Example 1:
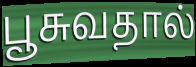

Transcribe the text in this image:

பூசுவதால்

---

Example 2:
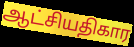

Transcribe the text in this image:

ஆட்சியதிகார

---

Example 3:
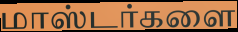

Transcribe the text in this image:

மாஸ்டர்களை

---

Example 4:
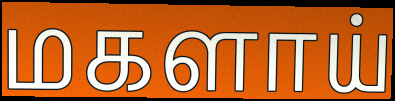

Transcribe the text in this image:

மகளாய்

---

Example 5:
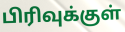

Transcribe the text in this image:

பிரிவுக்குள்